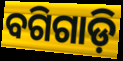
ବଗିଗାଡ଼ି